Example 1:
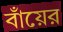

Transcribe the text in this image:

বাঁয়ের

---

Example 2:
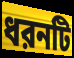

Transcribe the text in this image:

ধরনটি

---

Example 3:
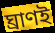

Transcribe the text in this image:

ঘ্রাণই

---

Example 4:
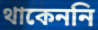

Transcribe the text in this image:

থাকেননি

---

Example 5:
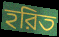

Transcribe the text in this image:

হরিত